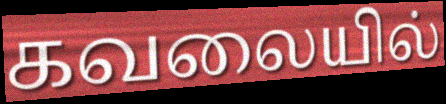
கவலையில்